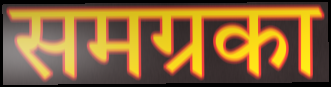
समग्रका